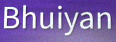
Bhuiyan